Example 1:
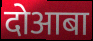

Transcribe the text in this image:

दोआबा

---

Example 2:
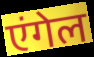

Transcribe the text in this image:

एंगेल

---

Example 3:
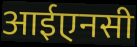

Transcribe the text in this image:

आईएनसी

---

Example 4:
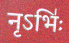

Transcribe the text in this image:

नृऽभिः॑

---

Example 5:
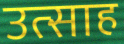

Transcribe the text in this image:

उत्‍साह